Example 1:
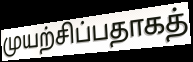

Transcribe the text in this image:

முயற்சிப்பதாகத்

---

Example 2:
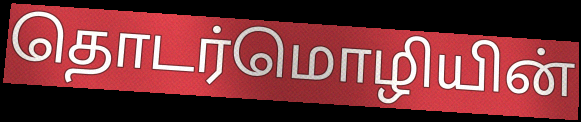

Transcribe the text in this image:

தொடர்மொழியின்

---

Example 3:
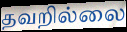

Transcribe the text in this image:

தவறில்லை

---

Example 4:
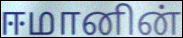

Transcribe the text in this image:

ஈமானின்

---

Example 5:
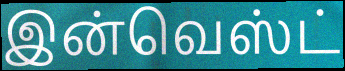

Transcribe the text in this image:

இன்வெஸ்ட்